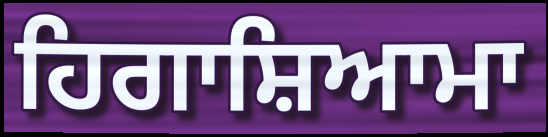
ਹਿਗਾਸ਼ਿਆਮਾ